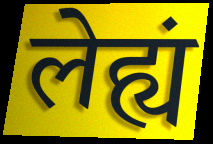
लेह्यं